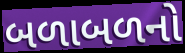
બળાબળનો